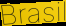
Brasil